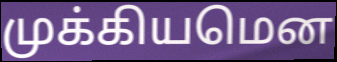
முக்கியமென